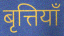
बृत्तियाँ